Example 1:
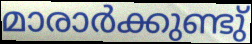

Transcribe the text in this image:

മാരാർക്കുണ്ടു്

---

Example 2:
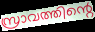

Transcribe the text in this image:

സ്രാവത്തിന്റെ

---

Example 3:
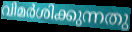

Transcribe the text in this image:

വിമർശിക്കുന്നതു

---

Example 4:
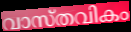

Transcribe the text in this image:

വാസ്തവികം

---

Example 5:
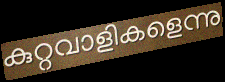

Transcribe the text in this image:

കുറ്റവാളികളെന്നു